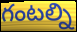
గంటల్ని